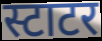
स्टाटर